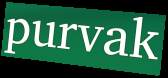
purvak